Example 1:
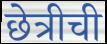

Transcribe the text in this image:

छेत्रीची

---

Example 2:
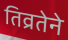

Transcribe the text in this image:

तिव्रतेने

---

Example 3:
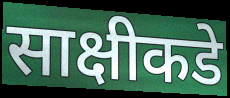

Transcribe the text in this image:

साक्षीकडे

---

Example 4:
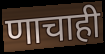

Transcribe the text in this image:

णाचाही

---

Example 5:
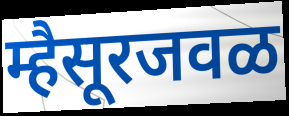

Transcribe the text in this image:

म्हैसूरजवळ